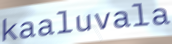
kaaluvala